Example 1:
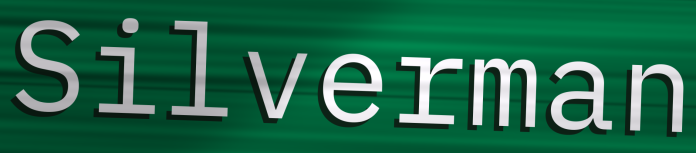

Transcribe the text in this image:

Silverman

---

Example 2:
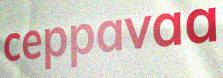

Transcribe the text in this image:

ceppavaa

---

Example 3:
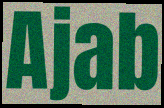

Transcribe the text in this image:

Ajab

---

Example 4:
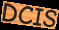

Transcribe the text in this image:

DCIS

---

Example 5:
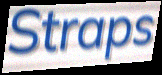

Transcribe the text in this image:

Straps